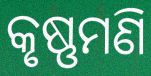
କୃଷ୍ଣମଣି